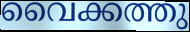
വൈക്കത്തു